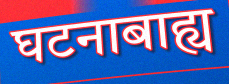
घटनाबाह्य